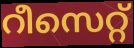
റീസെറ്റ്